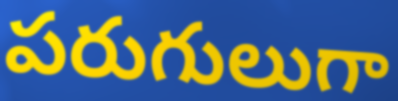
పరుగులుగా